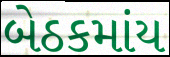
બેઠકમાંય